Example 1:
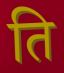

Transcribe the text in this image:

ति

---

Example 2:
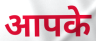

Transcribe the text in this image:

आपके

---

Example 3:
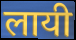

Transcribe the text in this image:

लायी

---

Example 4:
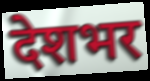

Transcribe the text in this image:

देशभर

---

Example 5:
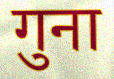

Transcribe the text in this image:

गुना